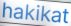
hakikat